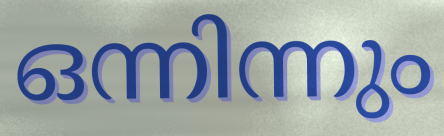
ഒന്നിന്നും